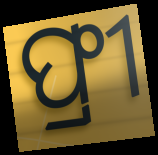
ଫ୍ରୀ